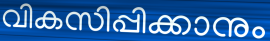
വികസിപ്പിക്കാനും